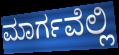
ಮಾರ್ಗವೆಲ್ಲಿ